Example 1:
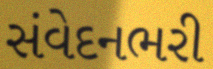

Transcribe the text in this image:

સંવેદનભરી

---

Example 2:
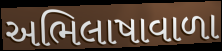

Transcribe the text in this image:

અભિલાષાવાળા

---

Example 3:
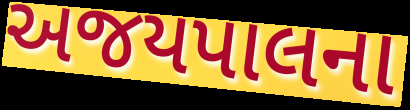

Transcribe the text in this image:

અજયપાલના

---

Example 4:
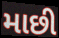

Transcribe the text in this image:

માછી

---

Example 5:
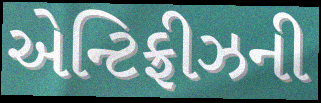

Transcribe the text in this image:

એન્ટિફ્રીઝની